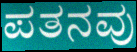
ಪತನವು